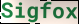
Sigfox